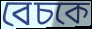
বেচকে